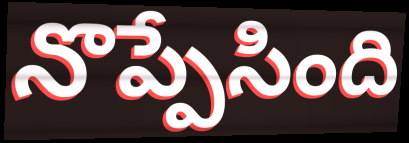
నొప్పేసింది